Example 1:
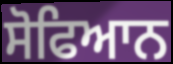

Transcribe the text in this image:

ਸੋਫਿਆਨ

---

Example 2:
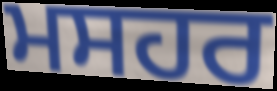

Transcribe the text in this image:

ਮਸਹਰ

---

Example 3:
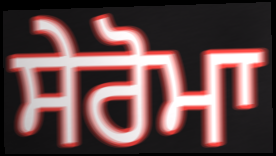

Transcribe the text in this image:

ਸੇਰੋਮਾ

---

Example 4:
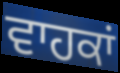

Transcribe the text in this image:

ਵਾਹਕਾਂ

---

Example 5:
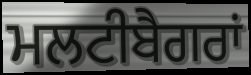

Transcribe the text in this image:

ਮਲਟੀਬੈਗਰਾਂ